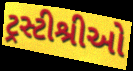
ટ્રસ્ટીશ્રીઓ